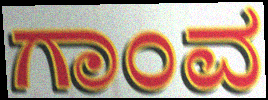
ಗಾಂವ